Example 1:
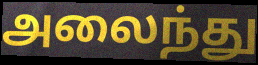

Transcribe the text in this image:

அலைந்து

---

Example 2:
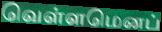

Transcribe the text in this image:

வெள்ளமெனப்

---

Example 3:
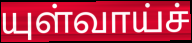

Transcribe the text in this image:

யுள்வாய்ச்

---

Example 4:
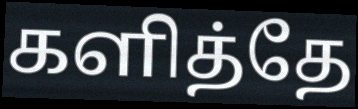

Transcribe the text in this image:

களித்தே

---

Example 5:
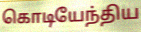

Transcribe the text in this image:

கொடியேந்திய